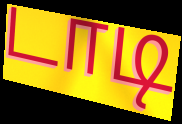
டாடி